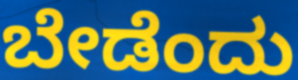
ಬೇಡೆಂದು